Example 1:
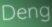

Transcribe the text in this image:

Deng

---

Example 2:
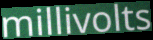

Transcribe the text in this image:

millivolts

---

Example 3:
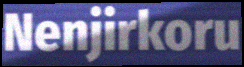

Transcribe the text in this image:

Nenjirkoru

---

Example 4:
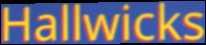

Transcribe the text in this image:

Hallwicks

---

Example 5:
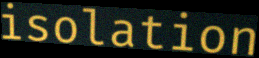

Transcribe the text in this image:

isolation